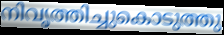
നിവൃത്തിച്ചുകൊടുത്തു